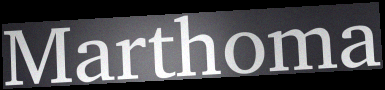
Marthoma